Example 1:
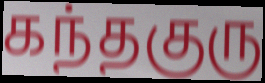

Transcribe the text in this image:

கந்தகுரு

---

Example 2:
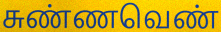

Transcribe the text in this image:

சுண்ணவெண்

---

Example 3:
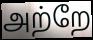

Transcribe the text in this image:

அற்றே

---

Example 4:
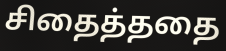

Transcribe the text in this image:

சிதைத்ததை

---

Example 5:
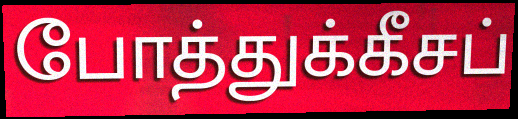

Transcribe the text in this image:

போத்துக்கீசப்